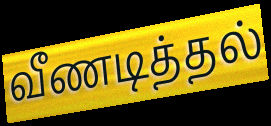
வீணடித்தல்